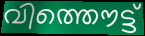
വിത്തൌട്ട്